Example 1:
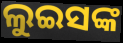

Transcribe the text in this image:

ଲୁଇସଙ୍କ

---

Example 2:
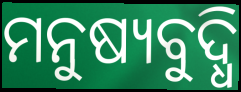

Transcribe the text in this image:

ମନୁଷ୍ୟବୁଦ୍ଧି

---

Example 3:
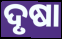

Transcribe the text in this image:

ଦୃଷା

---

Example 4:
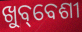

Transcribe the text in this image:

ଖୁବ୍‌ବେଶୀ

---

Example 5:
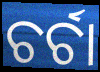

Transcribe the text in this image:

ଚର୍ଚା